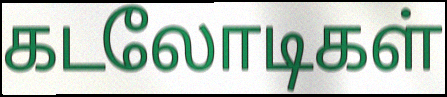
கடலோடிகள்